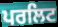
ਪਰਲਿਟ